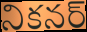
నికనర్